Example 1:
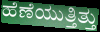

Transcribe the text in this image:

ಹೆಣೆಯುತ್ತಿತ್ತು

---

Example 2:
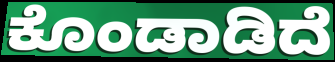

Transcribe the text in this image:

ಕೊಂಡಾಡಿದೆ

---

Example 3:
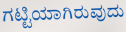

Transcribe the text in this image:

ಗಟ್ಟಿಯಾಗಿರುವುದು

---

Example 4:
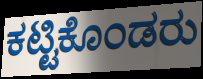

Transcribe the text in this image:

ಕಟ್ಟಿಕೊಂಡರು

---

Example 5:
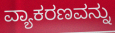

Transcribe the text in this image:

ವ್ಯಾಕರಣವನ್ನು